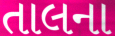
તાલના